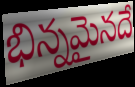
భిన్నమైనదే